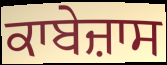
ਕਾਬੇਜ਼ਾਸ